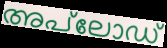
അപ്‌ലോഡ്